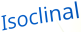
Isoclinal